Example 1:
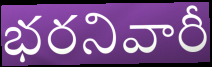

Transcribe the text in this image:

భరనివారీ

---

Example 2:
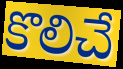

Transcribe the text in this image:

కొలిచే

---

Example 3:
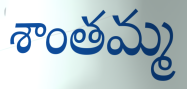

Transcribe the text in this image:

శాంతమ్మ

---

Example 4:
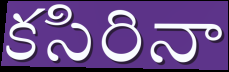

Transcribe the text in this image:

కసిరినా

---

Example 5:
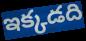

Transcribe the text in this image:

ఇక్కడది